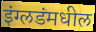
इंग्लडंमधील